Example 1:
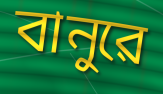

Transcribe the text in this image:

বানুৱে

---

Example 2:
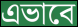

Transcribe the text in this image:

এভাবে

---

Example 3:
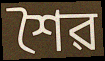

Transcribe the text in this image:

শৈৱ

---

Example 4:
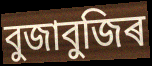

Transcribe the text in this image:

বুজাবুজিৰ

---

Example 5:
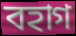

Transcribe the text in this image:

বহাগ